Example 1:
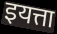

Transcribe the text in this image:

इयत्ता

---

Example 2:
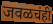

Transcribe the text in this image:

जवळचंही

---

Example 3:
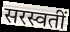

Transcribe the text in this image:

सरस्वतीं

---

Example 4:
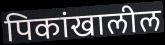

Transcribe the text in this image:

पिकांखालील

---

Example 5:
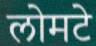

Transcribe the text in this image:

लोमटे